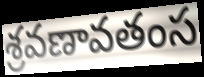
శ్రవణావతంస